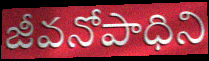
జీవనోపాధిని